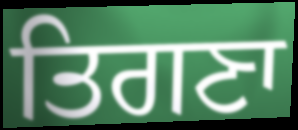
ਤਿਗਣਾ